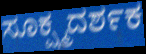
ಸೂಕ್ಷ್ಮದರ್ಶಕ